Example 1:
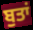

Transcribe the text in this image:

ਬੁਤਾਂ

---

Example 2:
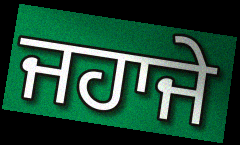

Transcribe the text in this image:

ਜਹਾਜੇ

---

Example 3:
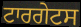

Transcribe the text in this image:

ਟਾਰਗੇਟਸ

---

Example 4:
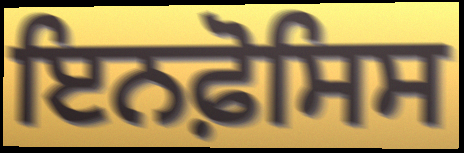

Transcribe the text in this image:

ਇਨਫ਼ੋਸਿਸ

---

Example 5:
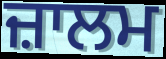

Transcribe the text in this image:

ਜ਼ਾਲਮ